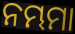
ନମ୍ଭମା